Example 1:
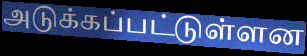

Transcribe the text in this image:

அடுக்கப்பட்டுள்ளன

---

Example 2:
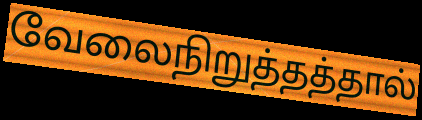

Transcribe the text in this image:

வேலைநிறுத்தத்தால்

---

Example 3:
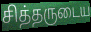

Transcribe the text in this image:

சித்தருடைய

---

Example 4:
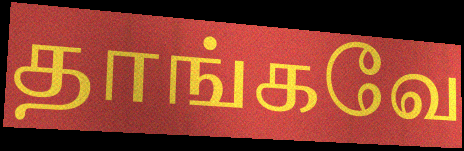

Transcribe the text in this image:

தாங்கவே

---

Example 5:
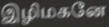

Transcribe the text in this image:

இழிமகனே